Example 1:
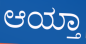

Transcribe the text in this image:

ಆಯ್ತಾ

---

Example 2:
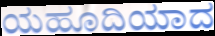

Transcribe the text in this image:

ಯಹೂದಿಯಾದ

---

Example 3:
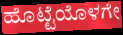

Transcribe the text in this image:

ಹೊಟ್ಟೆಯೊಳಗೇ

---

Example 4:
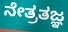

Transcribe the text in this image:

ನೇತ್ರತಜ್ಞ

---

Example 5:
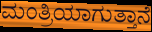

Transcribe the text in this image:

ಮಂತ್ರಿಯಾಗುತ್ತಾನೆ